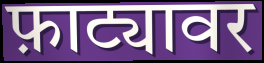
फ़ाट्यावर